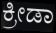
ಕ್ರೀಡಾ